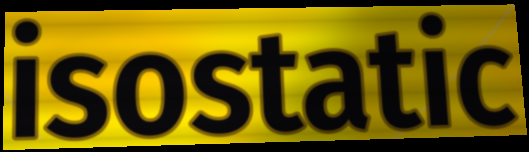
isostatic